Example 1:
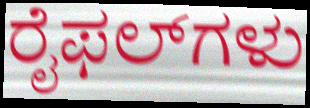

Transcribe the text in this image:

ರೈಫಲ್‌ಗಳು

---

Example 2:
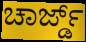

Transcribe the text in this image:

ಚಾರ್ಜ್ಡ್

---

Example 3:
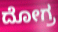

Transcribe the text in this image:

ದೋಗ್ರ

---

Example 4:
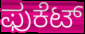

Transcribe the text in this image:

ಫುಕೆಟ್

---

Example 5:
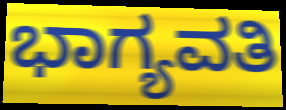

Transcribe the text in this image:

ಭಾಗ್ಯವತಿ